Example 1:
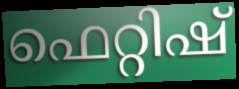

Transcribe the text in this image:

ഫെറ്റിഷ്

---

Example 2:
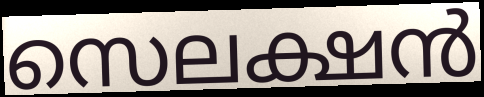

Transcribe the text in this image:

സെലക്ഷൻ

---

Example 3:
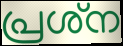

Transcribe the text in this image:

പ്രശ്‌ന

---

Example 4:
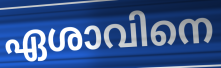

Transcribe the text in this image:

ഏശാവിനെ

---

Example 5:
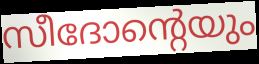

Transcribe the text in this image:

സീദോന്റെയും